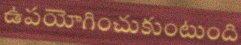
ఉపయోగించుకుంటుంది